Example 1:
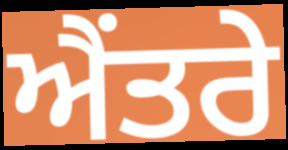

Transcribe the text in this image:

ਐਂਤਰੇ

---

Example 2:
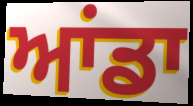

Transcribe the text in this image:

ਆਂਡਾ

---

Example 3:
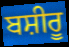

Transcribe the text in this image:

ਬਸ਼ੀਰੂ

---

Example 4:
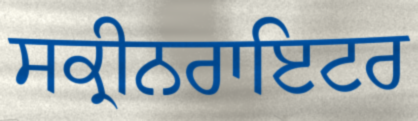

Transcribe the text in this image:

ਸਕ੍ਰੀਨਰਾਇਟਰ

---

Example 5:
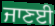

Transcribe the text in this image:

ਜਾਣਈ